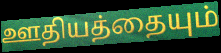
ஊதியத்தையும்